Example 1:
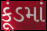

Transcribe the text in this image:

કૂંડમાં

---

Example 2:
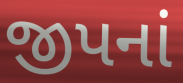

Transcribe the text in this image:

જીપનાં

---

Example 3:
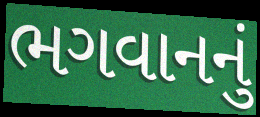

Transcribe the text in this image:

ભગવાનનું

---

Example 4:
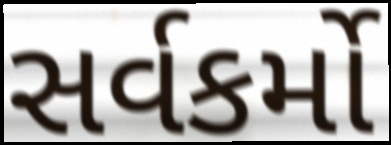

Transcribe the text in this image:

સર્વકર્મો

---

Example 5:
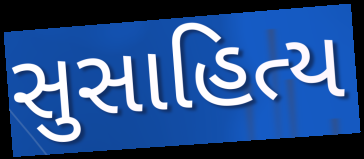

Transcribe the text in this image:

સુસાહિત્ય